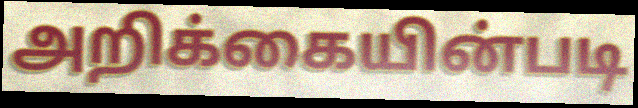
அறிக்கையின்படி